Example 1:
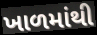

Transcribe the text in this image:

ખાળમાંથી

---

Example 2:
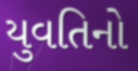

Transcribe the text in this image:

યુવતિનો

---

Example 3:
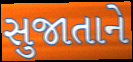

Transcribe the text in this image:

સુજાતાને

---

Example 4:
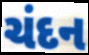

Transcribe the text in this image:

ચંદન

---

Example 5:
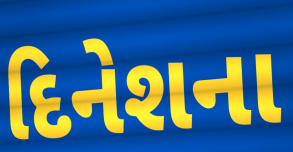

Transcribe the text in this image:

દિનેશના